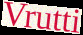
Vrutti